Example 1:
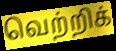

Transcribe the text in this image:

வெற்றிக்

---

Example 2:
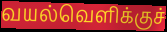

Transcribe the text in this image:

வயல்வெளிக்குச்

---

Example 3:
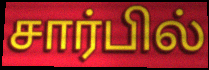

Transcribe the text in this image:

சார்பில்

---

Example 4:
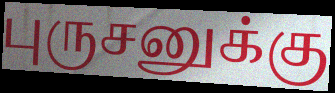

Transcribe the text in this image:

புருசனுக்கு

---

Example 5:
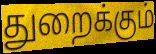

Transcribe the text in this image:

துறைக்கும்